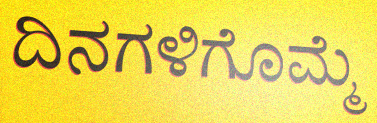
ದಿನಗಳಿಗೊಮ್ಮೆ